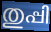
തുപ്പി